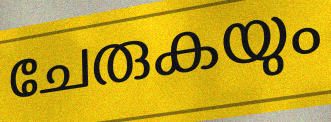
ചേരുകയും